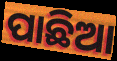
ପାଛିଆ